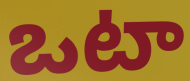
ఒటా